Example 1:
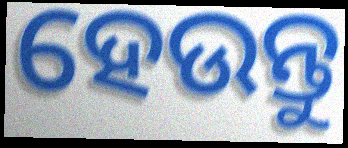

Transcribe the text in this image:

ହେଉନ୍ତୁ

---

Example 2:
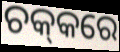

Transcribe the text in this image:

ଚକ୍‌କରେ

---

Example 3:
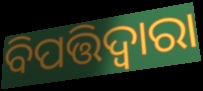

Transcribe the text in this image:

ବିପତ୍ତିଦ୍ୱାରା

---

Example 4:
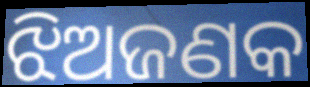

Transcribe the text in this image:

ଝିଅଜଣକ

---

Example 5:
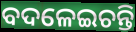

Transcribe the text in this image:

ବଦଳେଇଚନ୍ତି